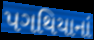
પગથિયાનાં